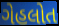
ગેહલોત